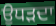
ਉਧੜਦਾ